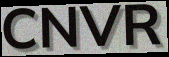
CNVR